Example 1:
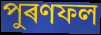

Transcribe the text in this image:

পুৰণফল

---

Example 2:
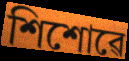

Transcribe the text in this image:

শিশোৱে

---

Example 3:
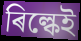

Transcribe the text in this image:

ৰিল্কেই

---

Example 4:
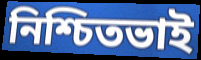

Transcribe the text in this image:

নিশ্চিতভাই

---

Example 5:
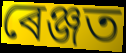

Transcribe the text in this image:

ৰেঞ্জত